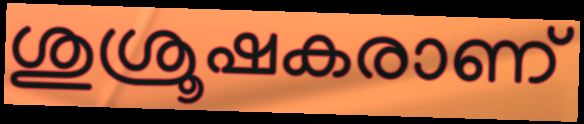
ശുശ്രൂഷകരാണ്